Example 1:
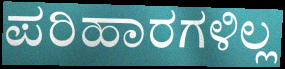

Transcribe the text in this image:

ಪರಿಹಾರಗಳಿಲ್ಲ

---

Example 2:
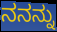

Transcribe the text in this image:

ನನನ್ನು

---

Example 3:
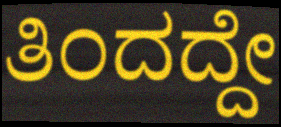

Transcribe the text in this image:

ತಿಂದದ್ದೇ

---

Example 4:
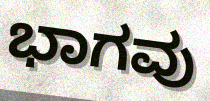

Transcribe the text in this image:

ಭಾಗವು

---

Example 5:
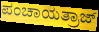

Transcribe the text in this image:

ಪಂಚಾಯತ್ರಾಜ್